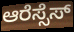
ಆರೆಸ್ಸೆಸ್